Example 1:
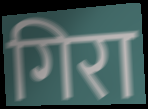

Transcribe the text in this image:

गिरा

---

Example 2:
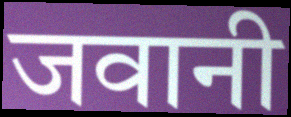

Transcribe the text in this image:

जवानी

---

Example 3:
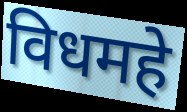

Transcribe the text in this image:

विधमहे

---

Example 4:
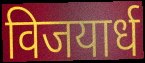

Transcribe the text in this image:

विजयार्ध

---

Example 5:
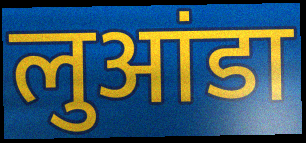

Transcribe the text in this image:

लुआंडा